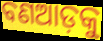
ବଣଆଡ଼କୁ